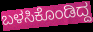
ಬಳಸಿಕೊಂಡಿದ್ದ